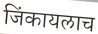
जिंकायलाच